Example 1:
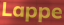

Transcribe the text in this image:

Lappe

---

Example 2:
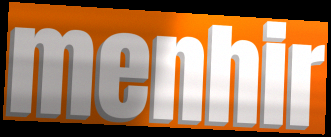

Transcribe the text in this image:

menhir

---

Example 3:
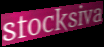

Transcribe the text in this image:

stocksiva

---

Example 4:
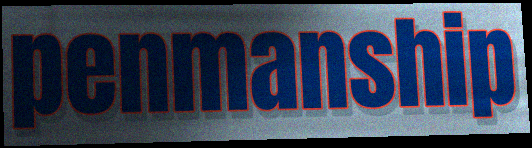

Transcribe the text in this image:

penmanship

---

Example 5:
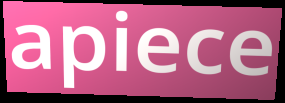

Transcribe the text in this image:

apiece